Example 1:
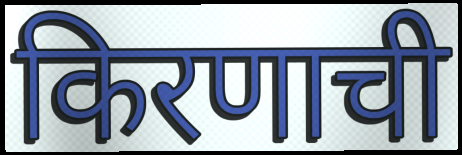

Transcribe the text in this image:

किरणाची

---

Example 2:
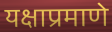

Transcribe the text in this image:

यक्षाप्रमाणे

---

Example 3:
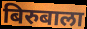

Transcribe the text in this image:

बिरुबाला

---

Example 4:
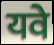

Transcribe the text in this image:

यवे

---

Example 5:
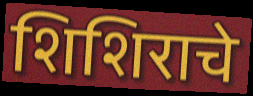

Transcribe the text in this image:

शिशिराचे